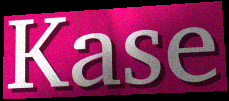
Kase